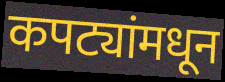
कपट्यांमधून